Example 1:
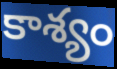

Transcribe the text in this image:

కాశ్యం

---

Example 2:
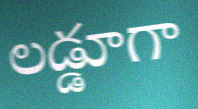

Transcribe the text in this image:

లడ్డూగా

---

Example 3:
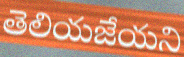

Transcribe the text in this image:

తెలియజేయని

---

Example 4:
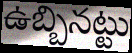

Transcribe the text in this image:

ఉబ్బినట్టు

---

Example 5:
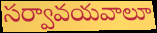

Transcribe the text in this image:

సర్వావయవాలూ